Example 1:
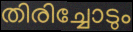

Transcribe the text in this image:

തിരിച്ചോടും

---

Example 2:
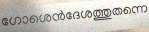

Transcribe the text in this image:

ഗോശെൻദേശത്തുതന്നെ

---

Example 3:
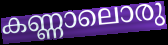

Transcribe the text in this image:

കണ്ണാലൊരു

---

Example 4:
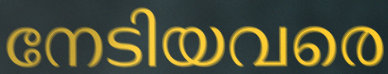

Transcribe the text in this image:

നേടിയവരെ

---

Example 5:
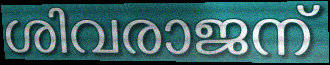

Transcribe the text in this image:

ശിവരാജന്